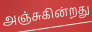
அஞ்சுகின்றது